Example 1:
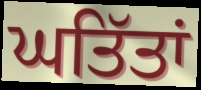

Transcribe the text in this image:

ਘਤਿੱਤਾਂ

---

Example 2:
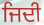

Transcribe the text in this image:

ਜਿਦੀ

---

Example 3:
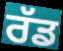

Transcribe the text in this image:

ਰੱਡ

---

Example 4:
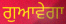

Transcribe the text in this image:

ਗੁਆਵੇਗਾ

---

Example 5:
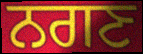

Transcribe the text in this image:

ਨਗਣ